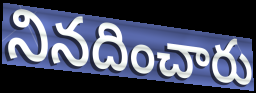
నినదించారు